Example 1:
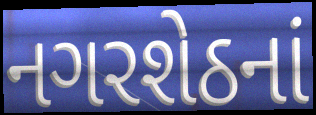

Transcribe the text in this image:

નગરશેઠનાં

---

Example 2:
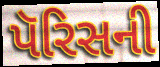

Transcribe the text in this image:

પૅરિસની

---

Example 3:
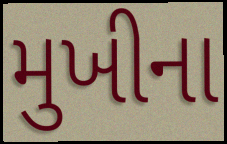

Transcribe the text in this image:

મુખીના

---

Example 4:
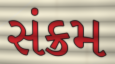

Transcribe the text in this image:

સંક્રમ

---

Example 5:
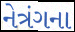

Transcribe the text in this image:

નેત્રંગના